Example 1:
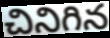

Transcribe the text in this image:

చినిగిన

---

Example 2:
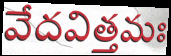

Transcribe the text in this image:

వేదవిత్తమః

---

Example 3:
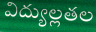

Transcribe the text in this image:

విద్యుల్లతల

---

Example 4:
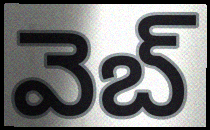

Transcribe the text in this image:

వెబ్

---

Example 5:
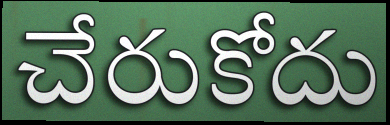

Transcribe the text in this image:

చేరుకోదు